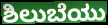
ಶಿಲುಬೆಯು